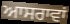
ਆਸਰਾਵਾਂ